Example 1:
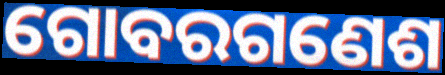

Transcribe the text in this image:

ଗୋବରଗଣେଶ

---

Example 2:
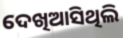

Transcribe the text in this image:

ଦେଖିଆସିଥିଲି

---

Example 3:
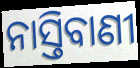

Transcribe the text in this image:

ନାସ୍ତିବାଣୀ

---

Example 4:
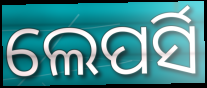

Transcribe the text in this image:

ଲେପର୍ସି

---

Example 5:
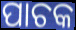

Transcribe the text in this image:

ପାଚକ